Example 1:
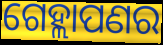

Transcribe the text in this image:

ଗେହ୍ଲାପଣର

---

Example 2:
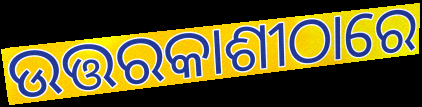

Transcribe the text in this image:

ଉତ୍ତରକାଶୀଠାରେ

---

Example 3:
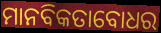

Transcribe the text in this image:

ମାନବିକତାବୋଧର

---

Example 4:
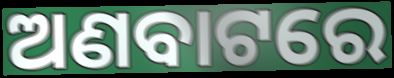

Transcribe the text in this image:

ଅଣବାଟରେ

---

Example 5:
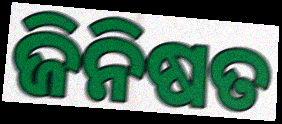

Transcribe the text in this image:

ଜିନିଷତ